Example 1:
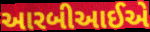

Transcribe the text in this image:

આરબીઆઈએ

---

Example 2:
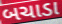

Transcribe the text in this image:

બચાડા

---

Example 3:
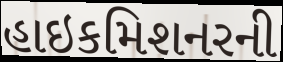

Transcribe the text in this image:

હાઇકમિશનરની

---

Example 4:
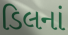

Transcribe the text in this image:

ડિલનાં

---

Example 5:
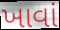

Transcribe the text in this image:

ખાવાં